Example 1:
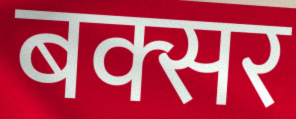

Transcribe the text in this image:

बक्‍सर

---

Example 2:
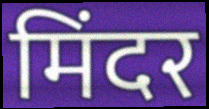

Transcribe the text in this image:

मिंदर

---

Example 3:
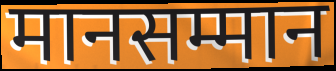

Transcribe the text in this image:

मानसम्मान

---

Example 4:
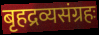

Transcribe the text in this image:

बृहद्रव्यसंग्रहः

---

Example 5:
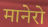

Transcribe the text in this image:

मानेरो